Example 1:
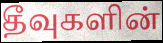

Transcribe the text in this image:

தீவுகளின்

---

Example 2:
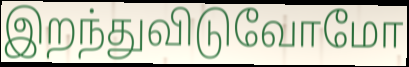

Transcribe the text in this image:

இறந்துவிடுவோமோ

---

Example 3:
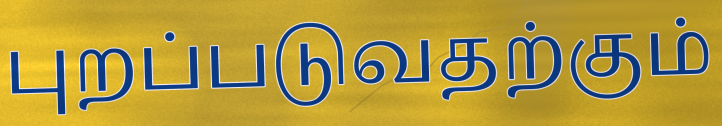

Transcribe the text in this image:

புறப்படுவதற்கும்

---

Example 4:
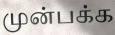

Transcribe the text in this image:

முன்பக்க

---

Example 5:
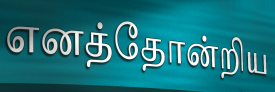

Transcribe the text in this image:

எனத்தோன்றிய